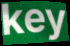
key